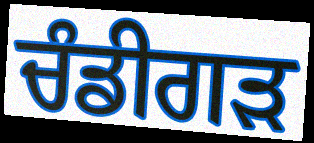
ਚੰਡੀਗਡ਼